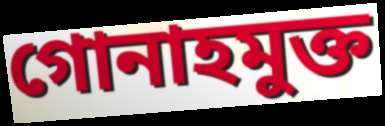
গোনাহমুক্ত